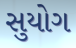
સુયોગ